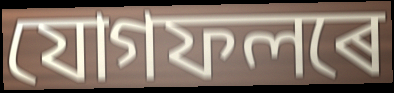
যোগফলৰে